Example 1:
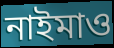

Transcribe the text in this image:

নাইমাও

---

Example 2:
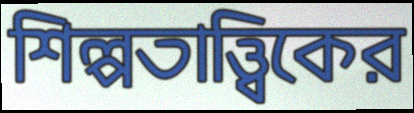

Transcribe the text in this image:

শিল্পতাত্ত্বিকের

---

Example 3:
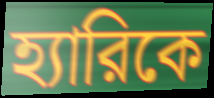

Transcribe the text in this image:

হ্যারিকে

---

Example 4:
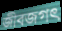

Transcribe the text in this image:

জীবজগৎ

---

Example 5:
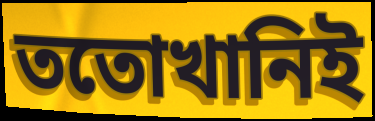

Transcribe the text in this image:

ততোখানিই